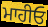
ਮਾਹੀਓ